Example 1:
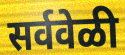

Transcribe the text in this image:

सर्ववेळी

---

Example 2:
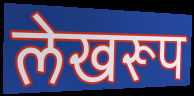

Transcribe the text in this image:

लेखरूप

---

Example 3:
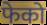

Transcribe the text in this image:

फेको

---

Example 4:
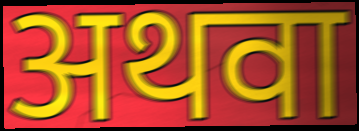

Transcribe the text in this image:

अथवा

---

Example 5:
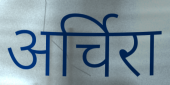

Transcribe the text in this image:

अर्चिरा